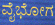
ವೈಭೋಗ